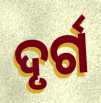
ଦୃର୍ଗ